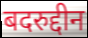
बदरुद्दीन